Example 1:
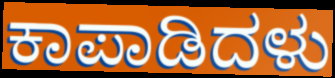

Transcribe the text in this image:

ಕಾಪಾಡಿದಳು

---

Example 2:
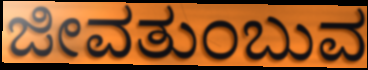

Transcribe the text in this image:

ಜೀವತುಂಬುವ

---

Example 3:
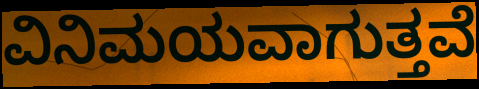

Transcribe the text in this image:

ವಿನಿಮಯವಾಗುತ್ತವೆ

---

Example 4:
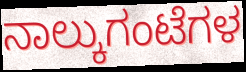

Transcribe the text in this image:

ನಾಲ್ಕುಗಂಟೆಗಳ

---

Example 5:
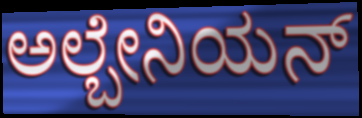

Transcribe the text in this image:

ಅಲ್ಬೇನಿಯನ್